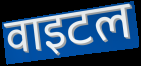
वाइटल